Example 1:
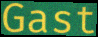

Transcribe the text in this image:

Gast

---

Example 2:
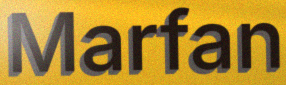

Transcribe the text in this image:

Marfan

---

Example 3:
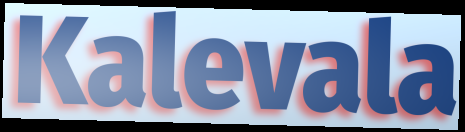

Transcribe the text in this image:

Kalevala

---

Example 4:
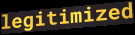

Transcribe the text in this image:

legitimized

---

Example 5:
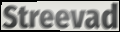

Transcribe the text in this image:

Streevad